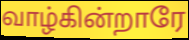
வாழ்கின்றாரே